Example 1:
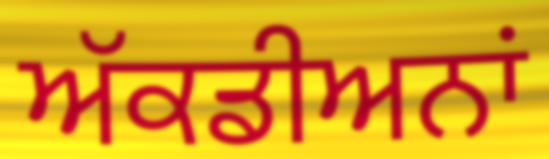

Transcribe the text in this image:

ਅੱਕਡੀਅਨਾਂ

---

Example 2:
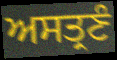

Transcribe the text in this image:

ਅਸਤ੍ਰਣੰ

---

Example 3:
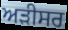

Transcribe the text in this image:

ਅੜੀਸਰ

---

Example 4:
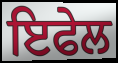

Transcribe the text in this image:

ਇਫੇਲ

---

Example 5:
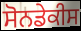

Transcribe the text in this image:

ਸੋਨਡੇਕੀਸ